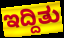
ಇದ್ದಿತು